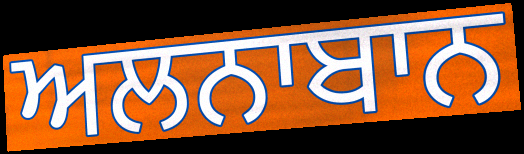
ਅਲਨਾਬਾਨ